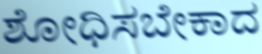
ಶೋಧಿಸಬೇಕಾದ